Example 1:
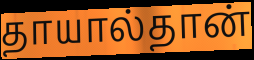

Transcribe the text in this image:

தாயால்தான்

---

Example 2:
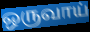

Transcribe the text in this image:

ஒருவாய்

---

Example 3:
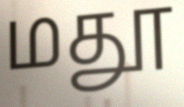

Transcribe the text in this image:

மதூ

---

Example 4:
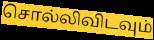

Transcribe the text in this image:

சொல்லிவிடவும்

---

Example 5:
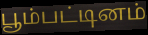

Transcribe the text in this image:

பூம்பட்டினம்